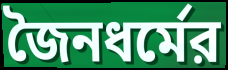
জৈনধর্মের